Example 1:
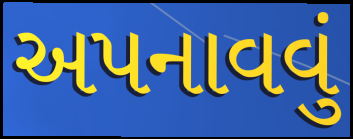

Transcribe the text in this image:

અપનાવવું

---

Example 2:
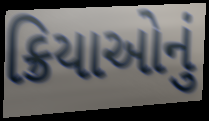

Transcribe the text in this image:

ક્રિયાઓનું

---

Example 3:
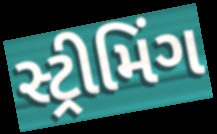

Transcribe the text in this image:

સ્ટ્રીમિંગ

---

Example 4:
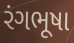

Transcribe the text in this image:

રંગભૂષા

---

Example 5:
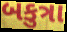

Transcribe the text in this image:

બકુત્રા